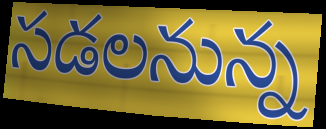
సడలనున్న